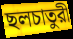
ছলচাতুরী